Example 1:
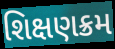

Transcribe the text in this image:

શિક્ષણક્રમ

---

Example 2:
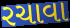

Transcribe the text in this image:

રચાવા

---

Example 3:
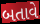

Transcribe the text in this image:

બતાવે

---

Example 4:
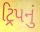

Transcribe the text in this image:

ટ્રિપનું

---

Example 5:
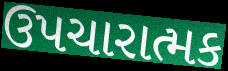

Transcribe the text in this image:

ઉપચારાત્મક